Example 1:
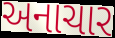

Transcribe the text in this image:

અનાચાર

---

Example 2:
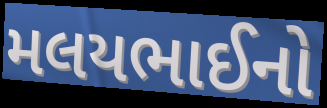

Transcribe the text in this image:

મલયભાઈનો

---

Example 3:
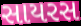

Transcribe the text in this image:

સાયરસ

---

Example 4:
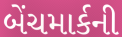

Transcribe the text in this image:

બેંચમાર્કની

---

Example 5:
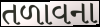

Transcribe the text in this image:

તળાવના